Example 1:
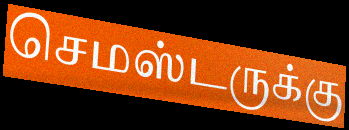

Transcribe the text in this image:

செமஸ்டருக்கு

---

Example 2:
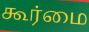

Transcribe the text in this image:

கூர்மை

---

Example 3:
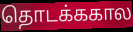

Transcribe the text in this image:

தொடக்ககால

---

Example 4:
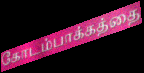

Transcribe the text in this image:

கோடம்பாக்கத்தை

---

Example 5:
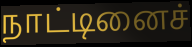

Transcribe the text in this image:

நாட்டினைச்